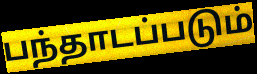
பந்தாடப்படும்